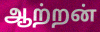
ஆற்றன்